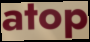
atop